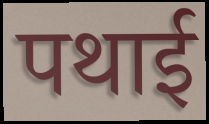
पथाई